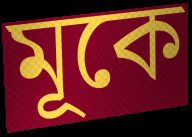
মূকে